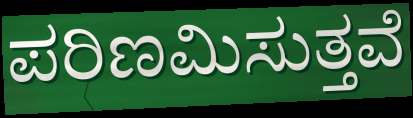
ಪರಿಣಮಿಸುತ್ತವೆ